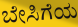
ಬೇಸಿಗೆಯ